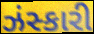
ઝંસ્કારી